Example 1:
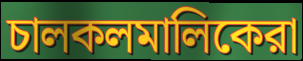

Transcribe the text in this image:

চালকলমালিকেরা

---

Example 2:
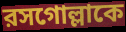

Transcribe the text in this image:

রসগোল্লাকে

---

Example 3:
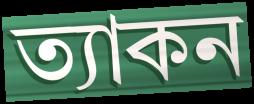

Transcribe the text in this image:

ত্যাকন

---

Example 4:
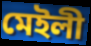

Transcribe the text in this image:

মেইলী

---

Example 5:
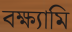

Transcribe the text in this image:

বক্ষ্যামি